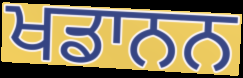
ਖਡਾਨਨ